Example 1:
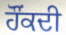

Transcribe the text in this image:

ਹੌਂਕਦੀ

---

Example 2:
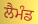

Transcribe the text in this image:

ਲੈਮੰਡ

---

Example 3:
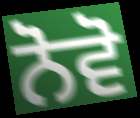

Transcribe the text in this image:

ਨੋਵੋ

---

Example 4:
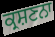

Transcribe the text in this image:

ਕ੍ਰਸ਼ਣਨਾ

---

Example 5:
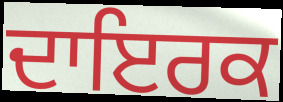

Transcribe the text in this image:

ਦਾਇਰਕ